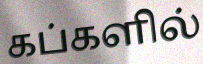
கப்களில்